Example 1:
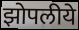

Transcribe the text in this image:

झोपलीये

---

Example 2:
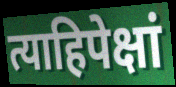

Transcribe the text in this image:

त्याहिपेक्षां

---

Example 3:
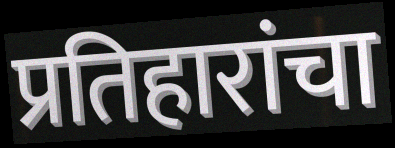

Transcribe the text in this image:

प्रतिहारांचा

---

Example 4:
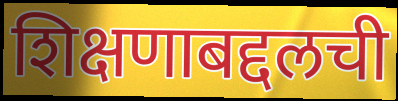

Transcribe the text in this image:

शिक्षणाबद्दलची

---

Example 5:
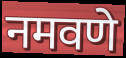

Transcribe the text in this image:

नमवणे